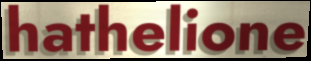
hathelione